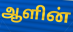
ஆளின்